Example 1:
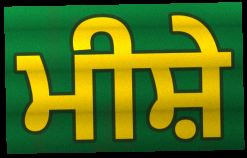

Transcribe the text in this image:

ਮੀਸ਼ੇ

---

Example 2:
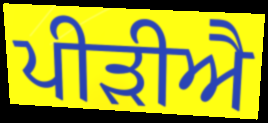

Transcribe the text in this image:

ਪੀੜੀਐ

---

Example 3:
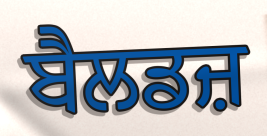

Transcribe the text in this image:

ਬੈਲਡਜ਼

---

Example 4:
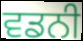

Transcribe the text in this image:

ਵਡਨੀ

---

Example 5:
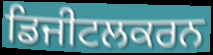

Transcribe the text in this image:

ਡਿਜੀਟਲਕਰਨ